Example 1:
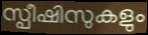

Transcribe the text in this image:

സ്പീഷിസുകളും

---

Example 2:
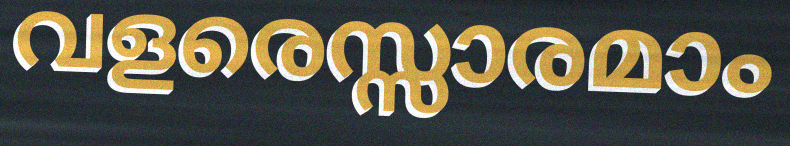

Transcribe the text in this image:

വളരെസ്സാരമാം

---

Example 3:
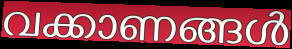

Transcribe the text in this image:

വക്കാണങ്ങൾ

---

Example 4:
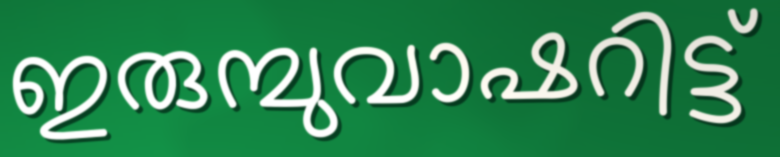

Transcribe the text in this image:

ഇരുമ്പുവാഷറിട്ട്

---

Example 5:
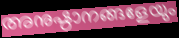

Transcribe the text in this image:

അനുഷ്ഠാനങ്ങളേയും